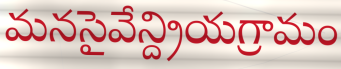
మనసైవేన్ద్రియగ్రామం